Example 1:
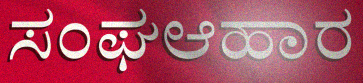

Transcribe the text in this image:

ಸಂಘಆಹಾರ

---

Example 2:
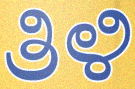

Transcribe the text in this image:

ತಿಳಿ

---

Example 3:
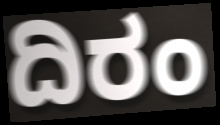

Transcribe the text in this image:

ದಿರಂ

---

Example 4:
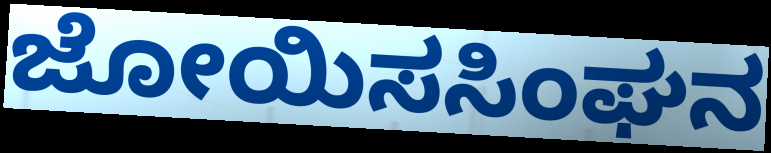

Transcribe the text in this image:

ಜೋಯಿಸಸಿಂಘನ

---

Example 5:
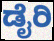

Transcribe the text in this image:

ಡೈರಿ